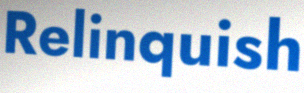
Relinquish